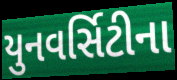
યુનવર્સિટીના